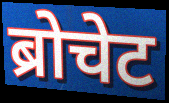
ब्रोचेट